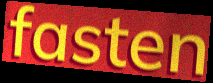
fasten